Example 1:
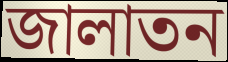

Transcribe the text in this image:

জালাতন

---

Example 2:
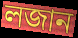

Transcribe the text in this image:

লজান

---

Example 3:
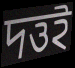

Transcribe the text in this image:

দত্তই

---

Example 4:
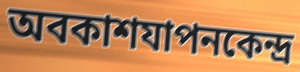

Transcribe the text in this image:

অবকাশযাপনকেন্দ্র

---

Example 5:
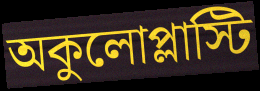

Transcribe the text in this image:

অকুলোপ্লাস্টি